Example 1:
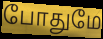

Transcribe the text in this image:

போதுமே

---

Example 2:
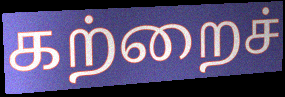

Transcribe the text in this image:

கற்றைச்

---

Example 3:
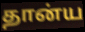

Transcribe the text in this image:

தான்ய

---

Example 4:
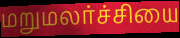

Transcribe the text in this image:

மறுமலர்ச்சியை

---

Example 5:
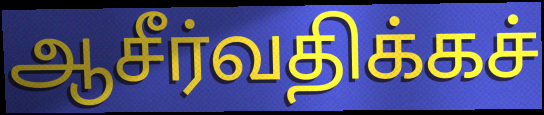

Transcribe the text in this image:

ஆசீர்வதிக்கச்